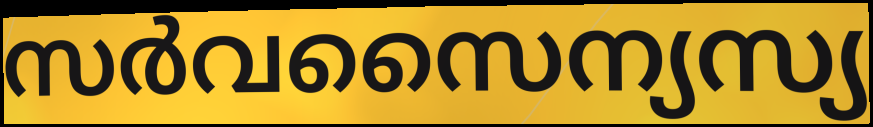
സർവസൈന്യസ്യ